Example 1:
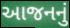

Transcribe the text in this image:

આજનનું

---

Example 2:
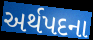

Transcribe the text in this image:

અર્થપદના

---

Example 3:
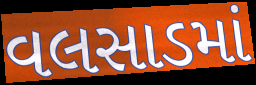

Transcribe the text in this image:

વલસાડમાં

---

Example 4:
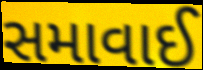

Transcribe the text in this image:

સમાવાઈ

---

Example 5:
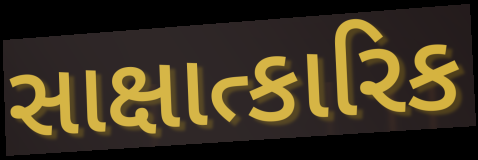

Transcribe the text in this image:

સાક્ષાત્કારિક